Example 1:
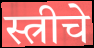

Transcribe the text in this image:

स्त्रीचे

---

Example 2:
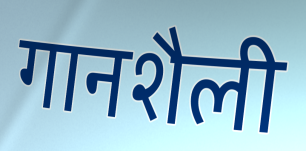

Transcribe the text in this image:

गानशैली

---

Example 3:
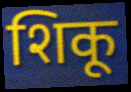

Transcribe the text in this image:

शिकू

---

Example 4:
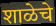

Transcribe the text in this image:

शाळेचे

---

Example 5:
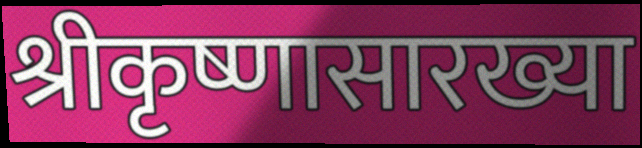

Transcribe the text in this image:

श्रीकृष्णासारख्या